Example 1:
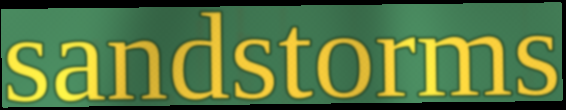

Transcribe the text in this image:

sandstorms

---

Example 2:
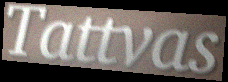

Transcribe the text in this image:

Tattvas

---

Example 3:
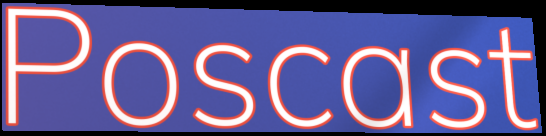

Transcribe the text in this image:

Poscast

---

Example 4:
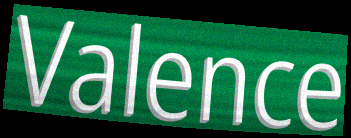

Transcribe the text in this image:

Valence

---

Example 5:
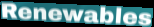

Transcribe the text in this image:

Renewables